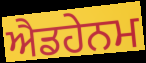
ਐਡਹੇਨਮ